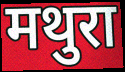
मथुरा